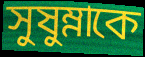
সুষুম্নাকে